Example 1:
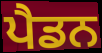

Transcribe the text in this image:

ਪੈਡਨ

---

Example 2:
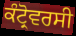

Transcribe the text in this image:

ਕੰਟ੍ਰੋਵਰਸੀ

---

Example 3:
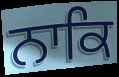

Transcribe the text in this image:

ਨਾਕਿ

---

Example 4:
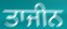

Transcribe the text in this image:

ਤਾਜੀਨ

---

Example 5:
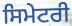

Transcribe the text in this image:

ਸਿਮੇਟਰੀ